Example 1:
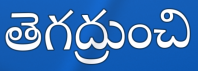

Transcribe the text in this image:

తెగద్రుంచి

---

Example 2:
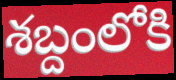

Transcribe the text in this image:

శబ్దంలోకి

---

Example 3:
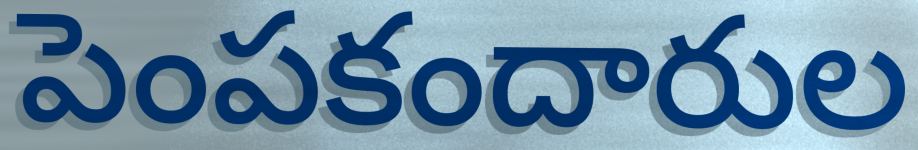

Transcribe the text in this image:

పెంపకందారుల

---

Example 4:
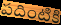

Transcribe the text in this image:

పదింటికి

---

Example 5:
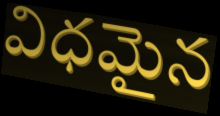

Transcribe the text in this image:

విధమైన